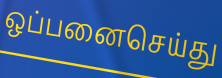
ஒப்பனைசெய்து